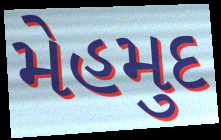
મેહમુદ